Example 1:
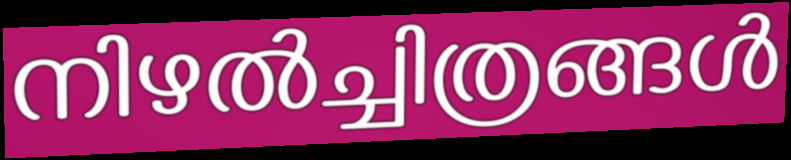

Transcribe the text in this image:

നിഴൽച്ചിത്രങ്ങൾ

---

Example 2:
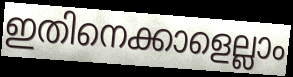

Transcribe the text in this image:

ഇതിനെക്കാളെല്ലാം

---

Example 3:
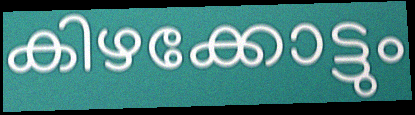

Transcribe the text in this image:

കിഴക്കോട്ടും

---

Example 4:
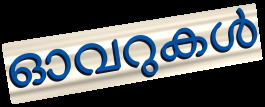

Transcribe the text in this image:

ഓവറുകൾ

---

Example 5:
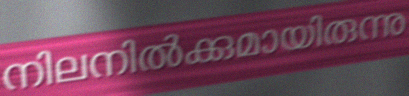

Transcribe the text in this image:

നിലനിൽക്കുമായിരുന്നു